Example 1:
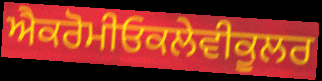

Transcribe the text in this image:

ਐਕਰੋਮੀਓਕਲੇਵੀਕੂਲਰ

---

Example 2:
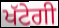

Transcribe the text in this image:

ਖੱਟੇਗੀ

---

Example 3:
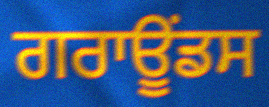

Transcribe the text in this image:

ਗਰਾਊਂਡਸ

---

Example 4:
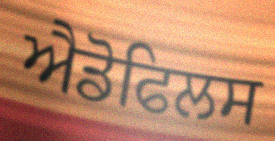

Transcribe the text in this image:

ਐਡੋਫਿਲਸ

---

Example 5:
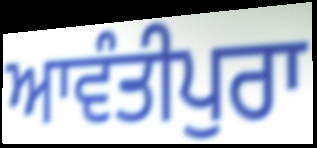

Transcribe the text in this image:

ਆਵੰਤੀਪੁਰਾ